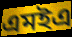
এমইএ